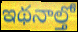
ఇథనాల్తో